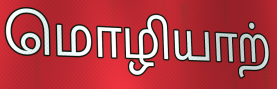
மொழியாற்